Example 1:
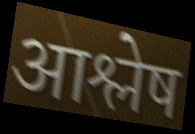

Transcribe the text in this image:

आश्लेष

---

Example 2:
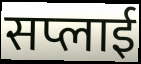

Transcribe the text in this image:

सप्‍लाई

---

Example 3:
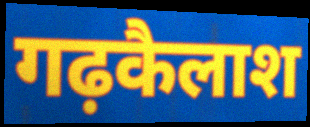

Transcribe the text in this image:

गढ़कैलाश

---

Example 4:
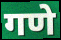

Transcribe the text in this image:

गणे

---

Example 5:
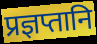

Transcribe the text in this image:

प्रज्ञप्तानि